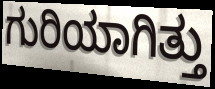
ಗುರಿಯಾಗಿತ್ತು